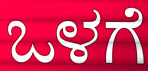
ಒಳಗೆ